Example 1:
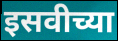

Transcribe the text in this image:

इसवीच्या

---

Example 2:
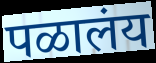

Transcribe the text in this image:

पळालंय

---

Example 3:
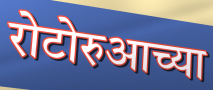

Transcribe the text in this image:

रोटोरुआच्या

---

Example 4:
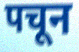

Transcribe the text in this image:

पचून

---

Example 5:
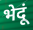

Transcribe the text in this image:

भेदूं